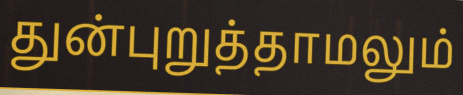
துன்புறுத்தாமலும்